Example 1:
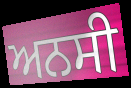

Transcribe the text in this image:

ਅਨਸੀ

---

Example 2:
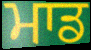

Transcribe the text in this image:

ਮਾਡ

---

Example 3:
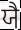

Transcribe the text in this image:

ਯੈ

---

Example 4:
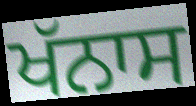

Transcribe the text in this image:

ਖੱਨਾਸ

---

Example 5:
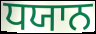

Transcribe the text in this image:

ਧਯਾਨ